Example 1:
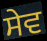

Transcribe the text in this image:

ਸੇਵ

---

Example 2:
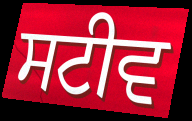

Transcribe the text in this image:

ਸਟੀਵ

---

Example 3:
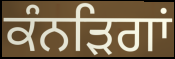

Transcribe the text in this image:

ਕੰਨੜਿਗਾਂ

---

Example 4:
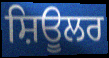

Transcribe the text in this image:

ਸ਼ਿਊਲਰ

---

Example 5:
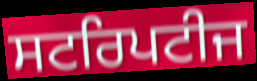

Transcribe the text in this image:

ਸਟਰਿਪਟੀਜ